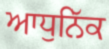
ਆਧੁਨਿੱਕ